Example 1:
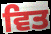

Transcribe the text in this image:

ਵਿਤ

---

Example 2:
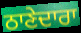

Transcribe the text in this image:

ਠਾਣੇਦਾਰਾ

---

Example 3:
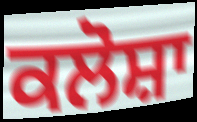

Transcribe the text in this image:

ਕਲੋਸ਼ਾ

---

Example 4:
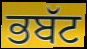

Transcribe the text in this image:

ਭਬੱਟ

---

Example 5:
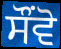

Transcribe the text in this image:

ਸੌਂਵੋ